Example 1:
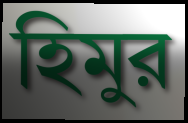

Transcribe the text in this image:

হিমুর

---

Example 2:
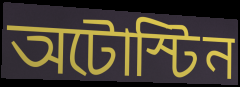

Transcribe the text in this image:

অটোস্টিন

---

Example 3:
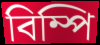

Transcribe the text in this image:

বিম্পি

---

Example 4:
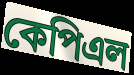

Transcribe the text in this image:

কেপিএল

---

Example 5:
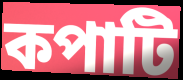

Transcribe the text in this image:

কপাটি